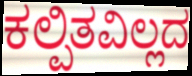
ಕಲ್ಪಿತವಿಲ್ಲದ